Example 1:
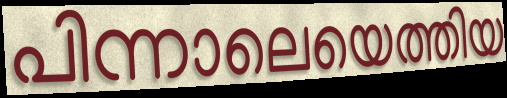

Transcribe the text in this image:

പിന്നാലെയെത്തിയ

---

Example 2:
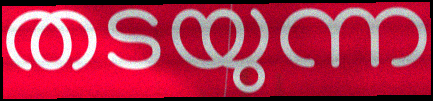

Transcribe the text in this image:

തടയുന്ന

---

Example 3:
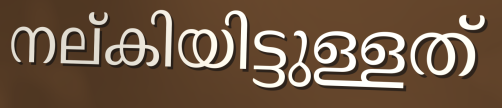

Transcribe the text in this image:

നല്കിയിട്ടുള്ളത്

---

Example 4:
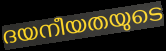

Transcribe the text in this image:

ദയനീയതയുടെ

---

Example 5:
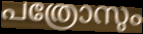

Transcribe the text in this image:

പത്രോസും